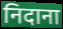
निदाना